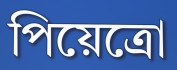
পিয়েত্রো